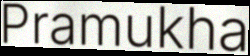
Pramukha